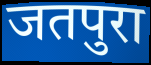
जतपुरा